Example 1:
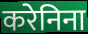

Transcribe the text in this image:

करेनिना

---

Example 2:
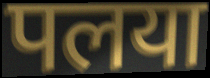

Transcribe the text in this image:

पलया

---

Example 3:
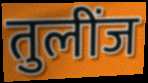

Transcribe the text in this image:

तुलींज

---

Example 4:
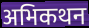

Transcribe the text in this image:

अभिकथन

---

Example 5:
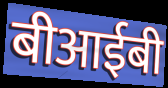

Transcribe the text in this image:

बीआईबी